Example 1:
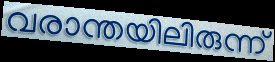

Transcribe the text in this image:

വരാന്തയിലിരുന്ന്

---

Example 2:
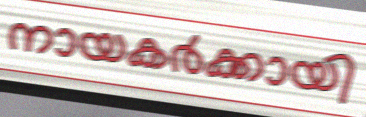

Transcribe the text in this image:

നായകർക്കായി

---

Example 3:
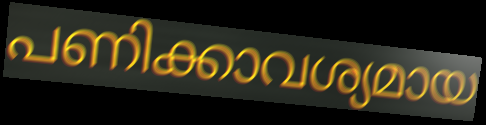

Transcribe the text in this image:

പണിക്കാവശ്യമായ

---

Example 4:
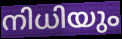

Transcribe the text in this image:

നിധിയും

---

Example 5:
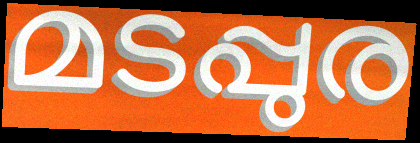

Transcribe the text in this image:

മടപ്പുര